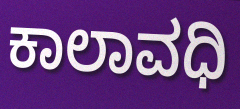
ಕಾಲಾವಧಿ